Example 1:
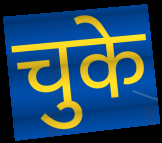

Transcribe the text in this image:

चुके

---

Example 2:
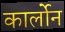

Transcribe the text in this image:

कार्लोन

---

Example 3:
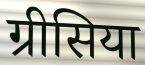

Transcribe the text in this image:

ग्रीसिया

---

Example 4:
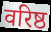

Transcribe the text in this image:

वरिष्ठ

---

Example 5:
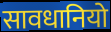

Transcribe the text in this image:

सावधानियो